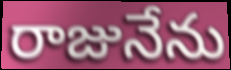
రాజునేను